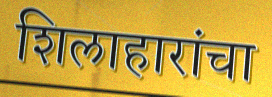
शिलाहारांचा